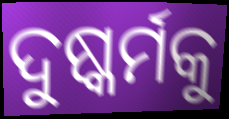
ଦୁଷ୍କର୍ମକୁ